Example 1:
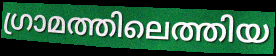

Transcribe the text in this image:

ഗ്രാമത്തിലെത്തിയ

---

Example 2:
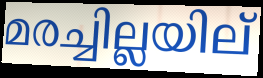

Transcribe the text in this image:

മരച്ചില്ലയില്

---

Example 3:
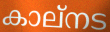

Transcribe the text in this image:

കാല്നട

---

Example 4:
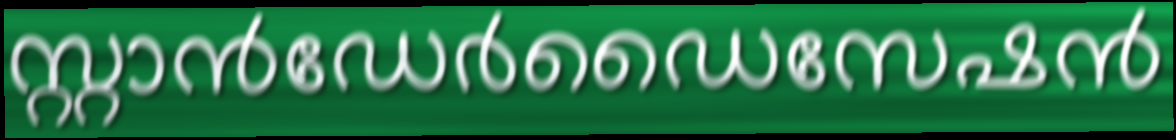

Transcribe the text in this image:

സ്റ്റാൻഡേർഡൈസേഷൻ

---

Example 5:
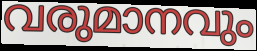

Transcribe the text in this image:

വരുമാനവും